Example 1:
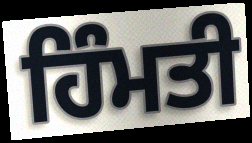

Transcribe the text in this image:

ਹਿੰਮਤੀ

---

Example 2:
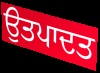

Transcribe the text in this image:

ਉਤਪਾਦਤ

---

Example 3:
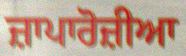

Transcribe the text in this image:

ਜ਼ਾਪਾਰੋਜ਼ੀਆ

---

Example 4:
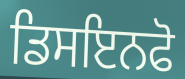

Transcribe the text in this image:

ਡਿਸਇਨਫੋ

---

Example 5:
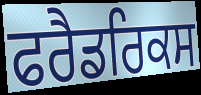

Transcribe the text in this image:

ਫਰੈਡਰਿਕਸ